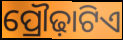
ପ୍ରୌଢ଼ାଟିଏ